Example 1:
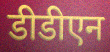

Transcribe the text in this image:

डीडीएन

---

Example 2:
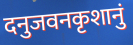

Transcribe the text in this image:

दनुजवनकृशानुं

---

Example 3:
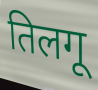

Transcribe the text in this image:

तिलगू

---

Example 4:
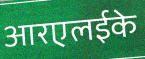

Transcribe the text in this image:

आरएलईके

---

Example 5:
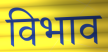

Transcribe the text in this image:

विभाव